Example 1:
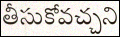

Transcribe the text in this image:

తీసుకోవచ్చని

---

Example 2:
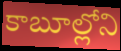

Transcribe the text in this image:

కాబూల్లోని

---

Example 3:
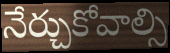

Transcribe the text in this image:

నేర్చుకోవాల్సి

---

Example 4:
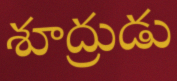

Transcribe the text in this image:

శూద్రుడు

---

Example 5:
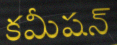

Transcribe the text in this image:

కమీషన్